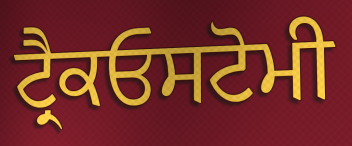
ਟ੍ਰੈਕਓਸਟੋਮੀ